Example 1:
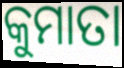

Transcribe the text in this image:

କୁମାତା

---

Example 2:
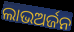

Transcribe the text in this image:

ଲାଭଅର୍ଜନ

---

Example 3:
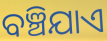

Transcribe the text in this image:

ବଞ୍ଚିଯାଏ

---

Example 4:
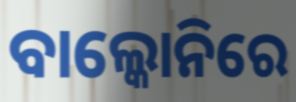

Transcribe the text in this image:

ବାଲ୍କୋନିରେ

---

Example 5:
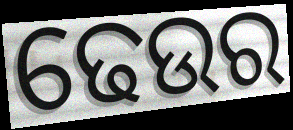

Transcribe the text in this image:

ଢେଉର